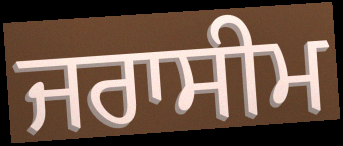
ਜਰਾਸੀਮ